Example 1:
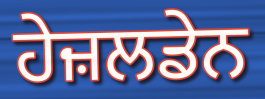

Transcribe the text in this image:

ਹੇਜ਼ਲਡੇਨ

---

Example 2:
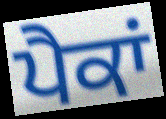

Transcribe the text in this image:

ਪੈਕਾਂ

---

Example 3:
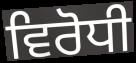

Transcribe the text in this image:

ਵਿਰੋਧੀ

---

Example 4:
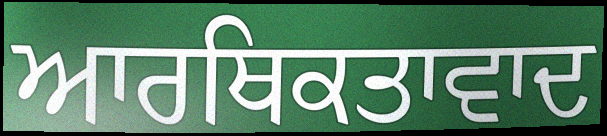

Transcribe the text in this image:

ਆਰਥਿਕਤਾਵਾਦ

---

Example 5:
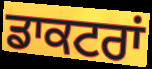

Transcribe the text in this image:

ਡਾਕਟਰਾਂ